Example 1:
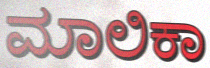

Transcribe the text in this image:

ಮಾಲಿಕಾ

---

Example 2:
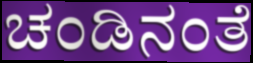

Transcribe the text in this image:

ಚಂಡಿನಂತೆ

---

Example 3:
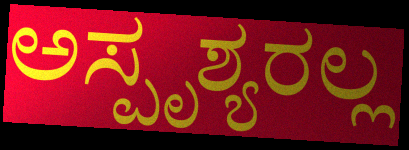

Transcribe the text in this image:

ಅಸ್ಪೃಶ್ಯರಲ್ಲ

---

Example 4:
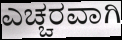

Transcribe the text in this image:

ಎಚ್ಚರವಾಗಿ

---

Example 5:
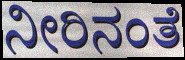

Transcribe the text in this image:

ನೀರಿನಂತೆ